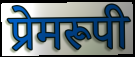
प्रेमरूपी